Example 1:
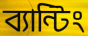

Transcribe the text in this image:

ব্যান্টিং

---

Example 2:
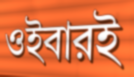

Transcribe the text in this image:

ওইবারই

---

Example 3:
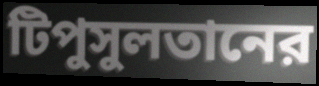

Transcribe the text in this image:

টিপুসুলতানের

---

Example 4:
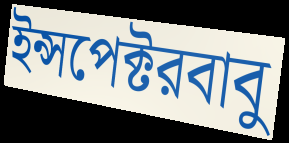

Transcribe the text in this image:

ইন্সপেক্টরবাবু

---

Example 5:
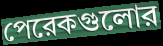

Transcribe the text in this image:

পেরেকগুলোর